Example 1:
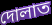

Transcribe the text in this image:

দোলাত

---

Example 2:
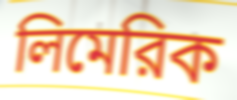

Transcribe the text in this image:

লিমেরিক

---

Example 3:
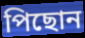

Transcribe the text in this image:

পিছোন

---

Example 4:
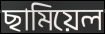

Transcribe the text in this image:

ছামিয়েল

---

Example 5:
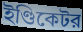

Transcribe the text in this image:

ইণ্ডিকেটর